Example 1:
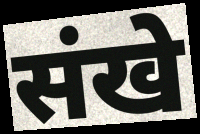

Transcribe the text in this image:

संखे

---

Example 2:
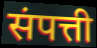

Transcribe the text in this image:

संपत्ती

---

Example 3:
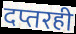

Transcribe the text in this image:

दप्तरही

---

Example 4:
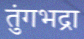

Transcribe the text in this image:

तुंगभद्रा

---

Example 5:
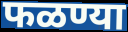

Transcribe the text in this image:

फळण्या